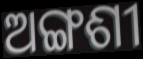
ଅଙ୍ଗଶୀ